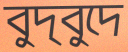
বুদ্‌বুদে